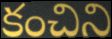
కంచిని